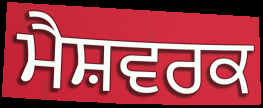
ਮੈਸ਼ਵਰਕ